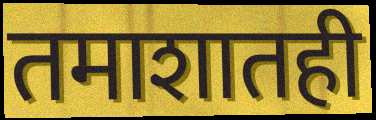
तमाशातही